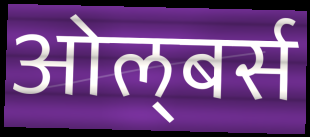
ओल्बर्स